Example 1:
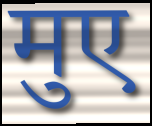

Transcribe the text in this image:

मुए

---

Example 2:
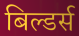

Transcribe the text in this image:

बिल्डर्स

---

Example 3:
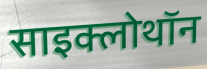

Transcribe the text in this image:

साइक्लोथॉन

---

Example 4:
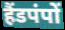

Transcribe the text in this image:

हैंडपंपों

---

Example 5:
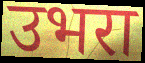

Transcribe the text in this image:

उभरा